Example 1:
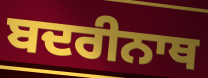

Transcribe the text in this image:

ਬਦਰੀਨਾਥ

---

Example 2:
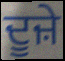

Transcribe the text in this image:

ਦੂਜ਼ੇ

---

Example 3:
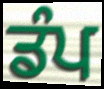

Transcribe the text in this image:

ਡੰਪ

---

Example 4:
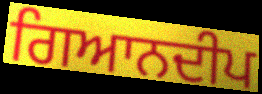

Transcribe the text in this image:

ਗਿਆਨਦੀਪ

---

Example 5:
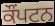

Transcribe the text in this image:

ਕੌਂਪਟਨ